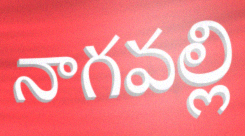
నాగవల్లి